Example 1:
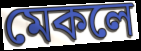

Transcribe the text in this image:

মেকলে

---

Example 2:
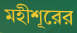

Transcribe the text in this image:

মহীশূরের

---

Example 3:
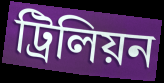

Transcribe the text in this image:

ট্রিলিয়ন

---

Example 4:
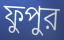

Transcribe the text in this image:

ফুপুর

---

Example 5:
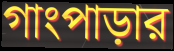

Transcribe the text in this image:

গাংপাড়ার